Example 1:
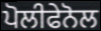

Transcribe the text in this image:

ਪੋਲੀਫੇਨੋਲ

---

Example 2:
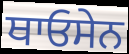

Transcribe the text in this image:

ਥਾਓਸੇਨ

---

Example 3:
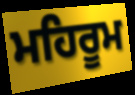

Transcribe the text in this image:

ਮਹਿਰੂਮ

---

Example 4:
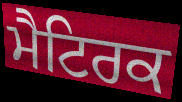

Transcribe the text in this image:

ਮੈਟਿਰਕ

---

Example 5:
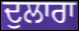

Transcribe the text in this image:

ਦੁਲਾਰਾ